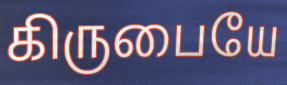
கிருபையே